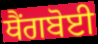
ਥੈਂਗਬੋਈ